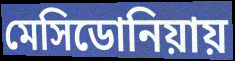
মেসিডোনিয়ায়